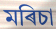
মৰিচা